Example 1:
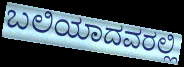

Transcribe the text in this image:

ಬಲಿಯಾದವರಲ್ಲಿ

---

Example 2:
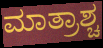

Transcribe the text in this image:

ಮಾತ್ರಾಶ್ಚ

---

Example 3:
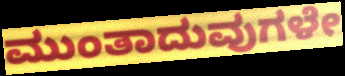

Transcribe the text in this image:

ಮುಂತಾದುವುಗಳೇ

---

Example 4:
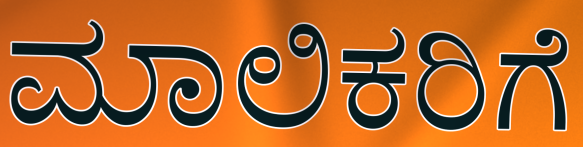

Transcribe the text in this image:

ಮಾಲಿಕರಿಗೆ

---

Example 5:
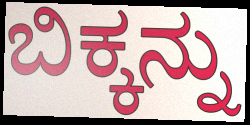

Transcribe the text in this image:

ಬಿಕ್ಕನ್ನು